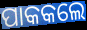
ପାକକଲେ